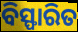
ବିସ୍ଫାରିତ